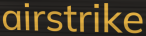
airstrike